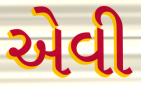
એવી